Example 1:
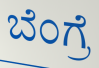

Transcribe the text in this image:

ಬೆಂಗ್ರೆ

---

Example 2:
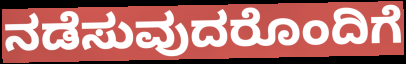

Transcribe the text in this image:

ನಡೆಸುವುದರೊಂದಿಗೆ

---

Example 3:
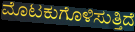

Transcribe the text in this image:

ಮೊಟಕುಗೊಳಿಸುತ್ತಿದೆ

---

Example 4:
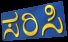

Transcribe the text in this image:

ಸರಿಸಿ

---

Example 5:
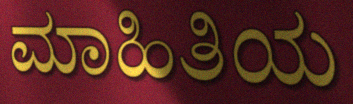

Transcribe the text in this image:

ಮಾಹಿತಿಯ